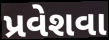
પ્રવેશવા